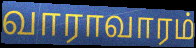
வாராவாரம்